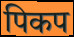
पिकप